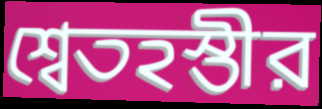
শ্বেতহস্তীর